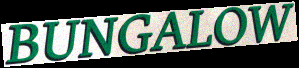
BUNGALOW